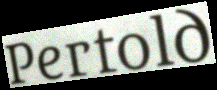
Pertold